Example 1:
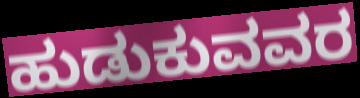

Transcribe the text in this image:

ಹುಡುಕುವವರ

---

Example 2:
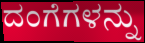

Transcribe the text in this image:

ದಂಗೆಗಳನ್ನು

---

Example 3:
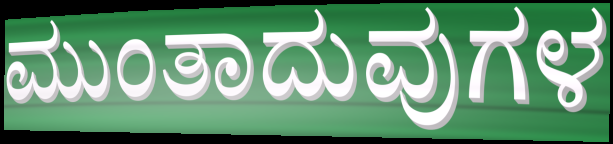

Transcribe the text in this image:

ಮುಂತಾದುವುಗಳ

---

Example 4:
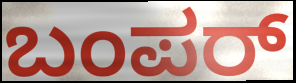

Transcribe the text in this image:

ಬಂಪರ್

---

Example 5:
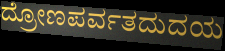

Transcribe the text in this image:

ದ್ರೋಣಪರ್ವತದುದಯ